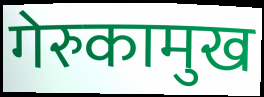
गेरुकामुख